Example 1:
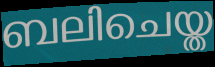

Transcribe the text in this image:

ബലിചെയ്ത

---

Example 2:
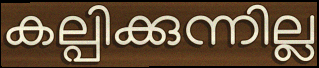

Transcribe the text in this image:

കല്പിക്കുന്നില്ല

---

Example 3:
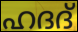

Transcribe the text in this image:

ഹദദ്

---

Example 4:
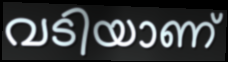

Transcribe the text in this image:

വടിയാണ്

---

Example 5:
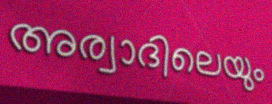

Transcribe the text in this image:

അര്വാദിലെയും